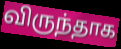
விருந்தாக